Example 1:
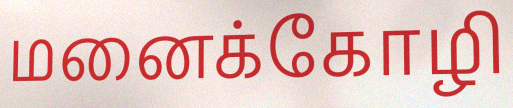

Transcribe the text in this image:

மனைக்கோழி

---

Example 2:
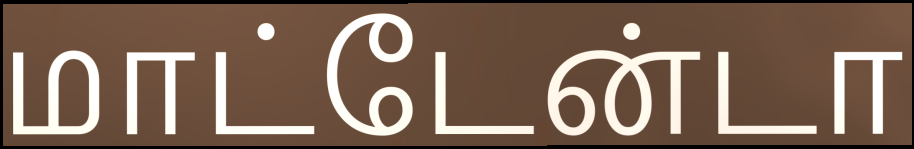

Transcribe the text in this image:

மாட்டேன்டா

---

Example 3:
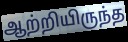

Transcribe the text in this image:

ஆற்றியிருந்த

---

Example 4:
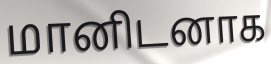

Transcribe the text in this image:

மானிடனாக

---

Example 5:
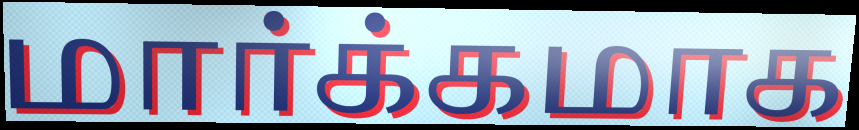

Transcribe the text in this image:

மார்க்கமாக